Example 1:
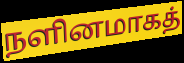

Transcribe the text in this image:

நளினமாகத்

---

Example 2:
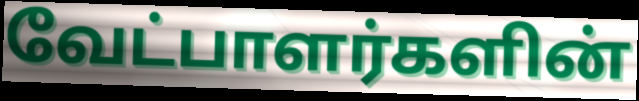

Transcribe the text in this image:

வேட்பாளர்களின்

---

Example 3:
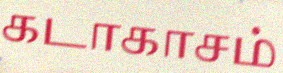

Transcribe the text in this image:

கடாகாசம்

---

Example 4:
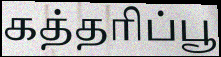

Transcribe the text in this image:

கத்தரிப்பூ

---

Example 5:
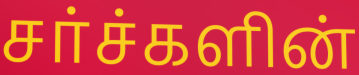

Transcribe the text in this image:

சர்ச்களின்